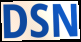
DSN